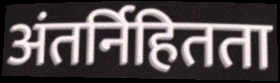
अंतर्निहितता